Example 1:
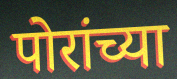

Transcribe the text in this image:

पोरांच्या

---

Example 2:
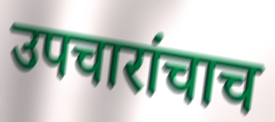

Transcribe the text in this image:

उपचारांचाच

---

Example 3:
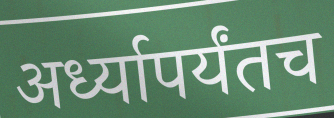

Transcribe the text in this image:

अर्ध्यापर्यंतच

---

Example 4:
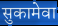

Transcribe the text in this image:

सुकामेवा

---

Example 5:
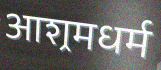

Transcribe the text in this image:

आश्रमधर्म